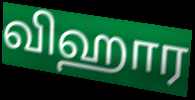
விஹார